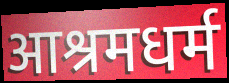
आश्रमधर्म